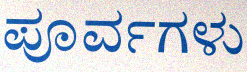
ಪೂರ್ವಗಳು